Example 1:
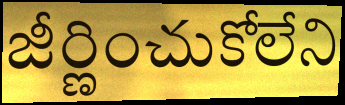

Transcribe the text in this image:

జీర్ణించుకోలేని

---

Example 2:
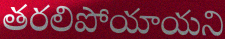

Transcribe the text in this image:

తరలిపోయాయని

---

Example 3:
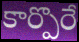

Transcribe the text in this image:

కార్పొరే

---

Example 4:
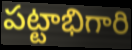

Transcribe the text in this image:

పట్టాభిగారి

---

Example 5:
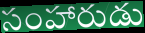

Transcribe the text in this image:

సంహారుడు